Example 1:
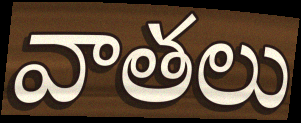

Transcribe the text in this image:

వాతలు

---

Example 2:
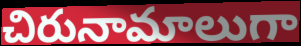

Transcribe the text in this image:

చిరునామాలుగా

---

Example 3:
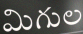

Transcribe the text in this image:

మిగుల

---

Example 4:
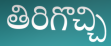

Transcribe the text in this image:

తిరిగొచ్చి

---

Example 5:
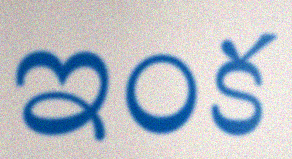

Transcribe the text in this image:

ఇంక